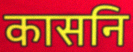
कासनि